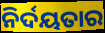
ନିର୍ଦୟତାର